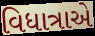
વિધાત્રાએ